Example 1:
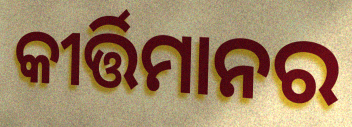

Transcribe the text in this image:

କୀର୍ତ୍ତିମାନର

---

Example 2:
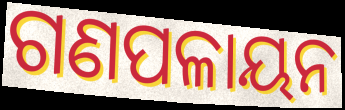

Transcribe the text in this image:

ଗଣପଳାୟନ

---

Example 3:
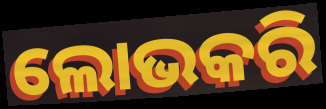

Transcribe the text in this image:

ଲୋଭକରି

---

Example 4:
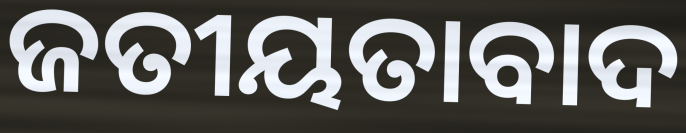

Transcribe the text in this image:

ଜତୀୟତାବାଦ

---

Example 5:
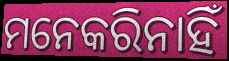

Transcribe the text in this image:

ମନେକରିନାହିଁ